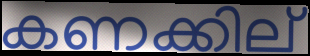
കണക്കില്